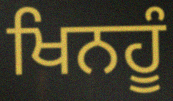
ਖਿਨਹੂੰ